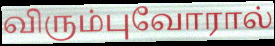
விரும்புவோரால்